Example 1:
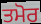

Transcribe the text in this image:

ਤਮੋਰ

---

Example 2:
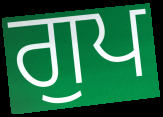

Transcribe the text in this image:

ਗੁਪ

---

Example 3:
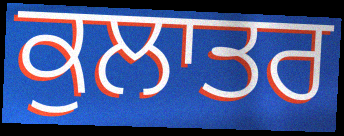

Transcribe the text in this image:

ਕੁਲਾਤਰ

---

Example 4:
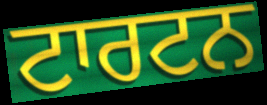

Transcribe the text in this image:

ਟਾਰਟਨ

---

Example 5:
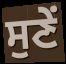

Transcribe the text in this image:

ਸੁਣੇਂ